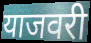
याजवरी